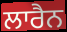
ਲਾਰੈਨ